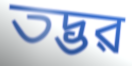
তদ্ভৱ